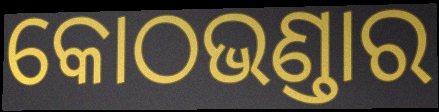
କୋଠଭଣ୍ଡାର